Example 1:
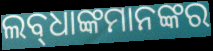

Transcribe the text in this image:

ଲବ୍‌ଧାଙ୍କମାନଙ୍କର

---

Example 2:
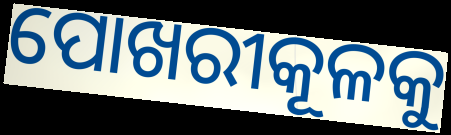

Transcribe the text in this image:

ପୋଖରୀକୂଳକୁ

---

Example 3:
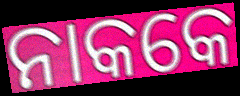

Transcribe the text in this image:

ନାକକେ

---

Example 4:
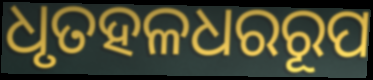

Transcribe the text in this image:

ଧୃତହଳଧରରୂପ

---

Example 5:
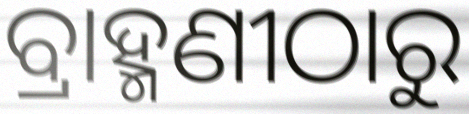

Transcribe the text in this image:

ବ୍ରାହ୍ମଣୀଠାରୁ